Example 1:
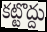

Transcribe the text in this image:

కట్టొద్దు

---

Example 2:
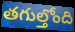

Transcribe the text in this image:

తగుల్తోంది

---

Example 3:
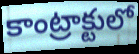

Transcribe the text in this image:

కాంట్రాక్టులో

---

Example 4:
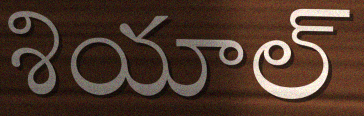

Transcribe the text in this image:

శియాల్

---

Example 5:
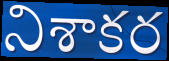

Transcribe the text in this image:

నిశాకర